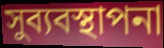
সুব্যবস্থাপনা